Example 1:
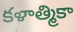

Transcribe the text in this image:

కళాత్మికా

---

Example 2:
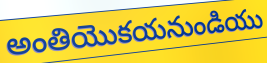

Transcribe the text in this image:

అంతియొకయనుండియు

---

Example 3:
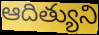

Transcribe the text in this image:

ఆదిత్యుని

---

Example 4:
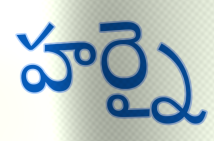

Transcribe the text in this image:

హర్నై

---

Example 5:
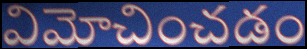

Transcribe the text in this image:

విమోచించడం